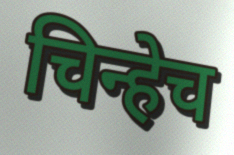
चिन्हेच